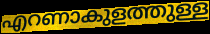
എറണാകുളത്തുള്ള